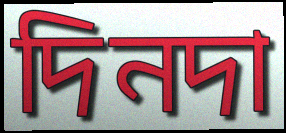
দিনদা